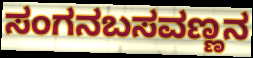
ಸಂಗನಬಸವಣ್ಣನ